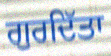
ਗੁਰਦਿੱਤਾ